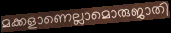
മക്കളാണെല്ലാമൊരുജാതി